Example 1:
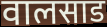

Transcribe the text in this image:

वालसाड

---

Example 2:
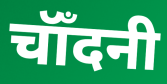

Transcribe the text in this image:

चॉँदनी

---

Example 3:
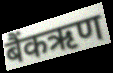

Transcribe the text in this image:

बैंकऋण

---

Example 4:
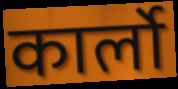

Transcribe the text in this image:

कार्लो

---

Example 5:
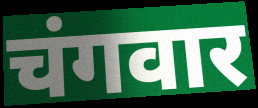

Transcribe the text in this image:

चंगवार